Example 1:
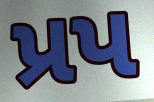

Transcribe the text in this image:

પ્રપ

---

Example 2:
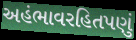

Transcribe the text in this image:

અહંભાવરહિતપણું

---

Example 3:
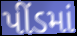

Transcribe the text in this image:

પીંડમાં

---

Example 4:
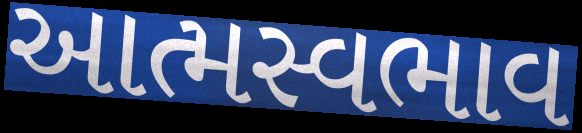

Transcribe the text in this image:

આત્મસ્વભાવ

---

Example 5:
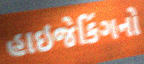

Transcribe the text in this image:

હાઇજેકિંગનો